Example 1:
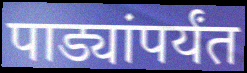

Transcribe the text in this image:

पाड्यांपर्यंत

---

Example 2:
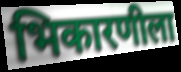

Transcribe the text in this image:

भिकारणीला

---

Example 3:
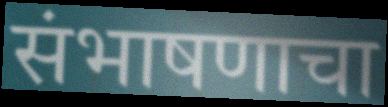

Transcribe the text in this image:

संभाषणाचा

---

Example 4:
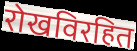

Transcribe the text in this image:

रोखविरहित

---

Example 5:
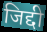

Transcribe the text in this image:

जिद्दी